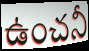
ఉంచనీ